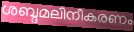
ശബ്ദമലിനീകരണം